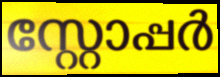
സ്റ്റോപ്പർ